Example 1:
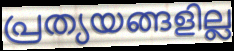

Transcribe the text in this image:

പ്രത്യയങ്ങളില്ല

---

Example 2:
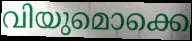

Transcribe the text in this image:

വിയുമൊക്കെ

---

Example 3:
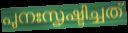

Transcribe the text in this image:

പുനഃസൃഷ്ടിച്ചത്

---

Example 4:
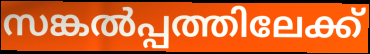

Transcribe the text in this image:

സങ്കൽപ്പത്തിലേക്ക്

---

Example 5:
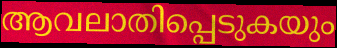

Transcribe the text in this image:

ആവലാതിപ്പെടുകയും